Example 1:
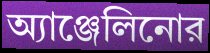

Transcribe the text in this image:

অ্যাঞ্জেলিনোর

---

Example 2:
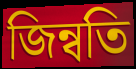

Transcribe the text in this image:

জিন্বতি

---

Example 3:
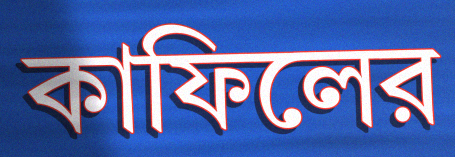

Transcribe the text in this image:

কাফিলের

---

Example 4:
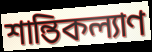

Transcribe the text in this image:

শান্তিকল্যাণ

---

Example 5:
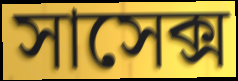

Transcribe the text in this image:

সাসেক্স